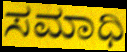
ಸಮಾಧಿ